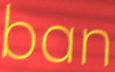
ban